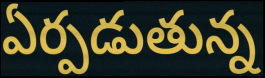
ఏర్పడుతున్న